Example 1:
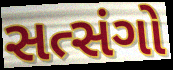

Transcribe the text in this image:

સત્સંગો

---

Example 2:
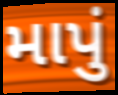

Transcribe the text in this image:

માપું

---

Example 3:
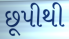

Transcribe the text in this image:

છૂપીથી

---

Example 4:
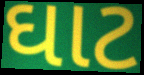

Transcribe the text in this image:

ઘાટ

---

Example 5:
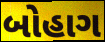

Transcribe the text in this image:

બોહાગ